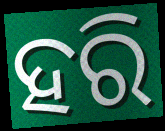
ହରି